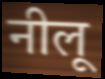
नीलू